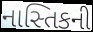
નાસ્તિકની